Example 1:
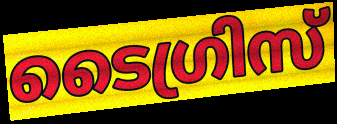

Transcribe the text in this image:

ടൈഗ്രിസ്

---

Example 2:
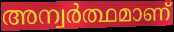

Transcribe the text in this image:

അന്വർത്ഥമാണ്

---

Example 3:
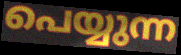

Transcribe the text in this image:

പെയ്യുന്ന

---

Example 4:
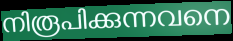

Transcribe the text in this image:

നിരൂപിക്കുന്നവനെ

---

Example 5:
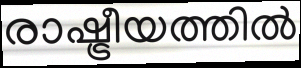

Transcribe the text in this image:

രാഷ്ട്രീയത്തിൽ